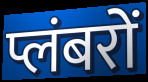
प्लंबरों